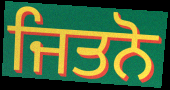
ਜਿਤਨੋ